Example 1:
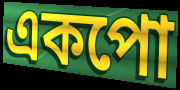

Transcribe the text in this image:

একপো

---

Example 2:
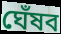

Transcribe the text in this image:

ঘেঁষব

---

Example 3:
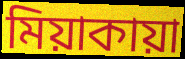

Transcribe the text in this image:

মিয়াকায়া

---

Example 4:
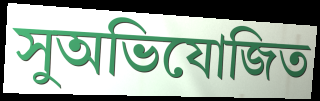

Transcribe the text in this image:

সুঅভিযোজিত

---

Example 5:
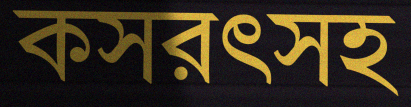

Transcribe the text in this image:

কসরৎসহ